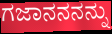
ಗಜಾನನನನ್ನು